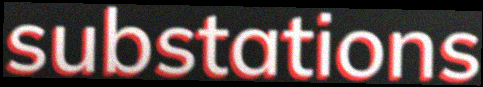
substations